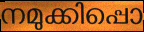
നമുക്കിപ്പൊ